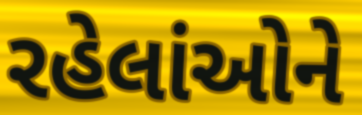
રહેલાંઓને